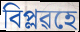
বিপ্লৱহে